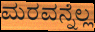
ಮರವನ್ನೆಲ್ಲ